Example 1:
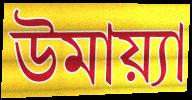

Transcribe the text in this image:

উমায়্যা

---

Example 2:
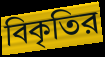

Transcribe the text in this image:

বিকৃতির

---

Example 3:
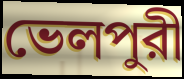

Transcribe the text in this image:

ভেলপুরী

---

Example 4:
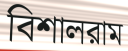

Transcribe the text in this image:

বিশালরাম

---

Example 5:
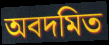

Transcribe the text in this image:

অবদমিত